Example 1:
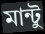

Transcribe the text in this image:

মান্টু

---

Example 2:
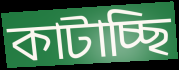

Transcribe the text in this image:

কাটাচ্ছি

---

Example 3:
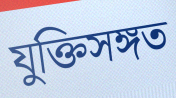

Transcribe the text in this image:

যুক্তিসঙ্গত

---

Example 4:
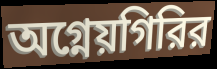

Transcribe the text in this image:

অগ্নেয়গিরির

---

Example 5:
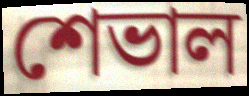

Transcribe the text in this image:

শেভাল